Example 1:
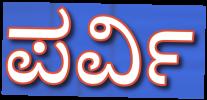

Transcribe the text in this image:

ಪರ್ವಿ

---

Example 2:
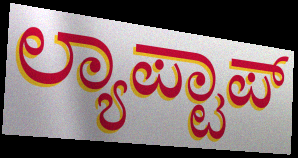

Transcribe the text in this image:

ಲ್ಯಾಪ್ಟಾಪ್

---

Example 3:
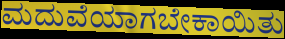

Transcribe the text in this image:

ಮದುವೆಯಾಗಬೇಕಾಯಿತು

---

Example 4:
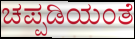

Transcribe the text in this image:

ಚಪ್ಪಡಿಯಂತೆ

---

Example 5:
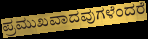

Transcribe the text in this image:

ಪ್ರಮುಖವಾದವುಗಳೆಂದರೆ